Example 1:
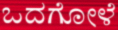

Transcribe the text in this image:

ಒದಗೋಳೆ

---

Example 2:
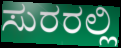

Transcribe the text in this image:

ಸುರರಲ್ಲಿ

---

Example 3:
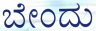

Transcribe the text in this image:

ಬೇಂದು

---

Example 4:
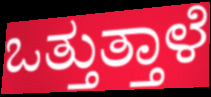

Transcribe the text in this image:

ಒತ್ತುತ್ತಾಳೆ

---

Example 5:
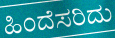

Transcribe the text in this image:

ಹಿಂದೆಸರಿದು